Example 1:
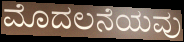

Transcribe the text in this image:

ಮೊದಲನೆಯವು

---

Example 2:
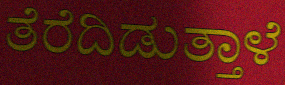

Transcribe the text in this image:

ತೆರೆದಿಡುತ್ತಾಳೆ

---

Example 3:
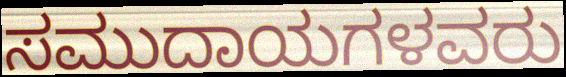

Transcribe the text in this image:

ಸಮುದಾಯಗಳವರು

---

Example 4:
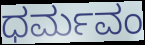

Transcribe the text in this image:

ಧರ್ಮವಂ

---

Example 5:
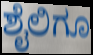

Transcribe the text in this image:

ಶೈಲಿಗೂ